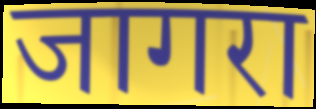
जागरा